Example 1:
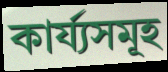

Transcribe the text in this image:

কাৰ্য্যসমূহ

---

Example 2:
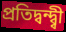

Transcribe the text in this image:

প্ৰতিদ্বন্দ্ব্বী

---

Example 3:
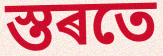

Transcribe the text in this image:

স্তৰতে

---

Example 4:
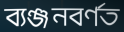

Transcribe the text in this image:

ব্যঞ্জনবৰ্ণত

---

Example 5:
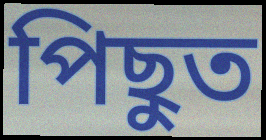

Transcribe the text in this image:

পিছুত